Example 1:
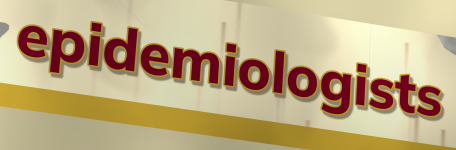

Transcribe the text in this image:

epidemiologists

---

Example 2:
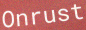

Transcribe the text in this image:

Onrust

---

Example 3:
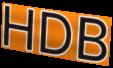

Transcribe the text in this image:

HDB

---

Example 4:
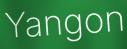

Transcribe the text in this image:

Yangon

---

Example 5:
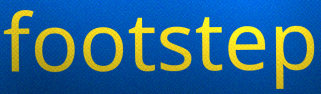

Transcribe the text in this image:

footstep